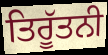
ਤਿਰੂੱਤਨੀ